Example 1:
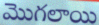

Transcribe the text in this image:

మొగలాయి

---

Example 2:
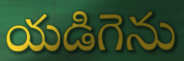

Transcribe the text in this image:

యడిగెను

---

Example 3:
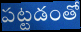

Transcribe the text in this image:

పట్టడంతో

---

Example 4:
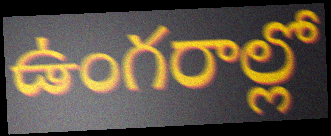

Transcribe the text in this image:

ఉంగరాల్లో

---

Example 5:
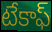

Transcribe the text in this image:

టేకాఫ్